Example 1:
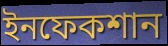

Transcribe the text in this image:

ইনফেকশান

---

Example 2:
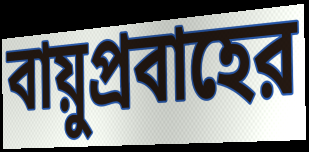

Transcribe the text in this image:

বায়ুপ্রবাহের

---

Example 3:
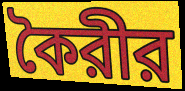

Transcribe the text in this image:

কৈরীর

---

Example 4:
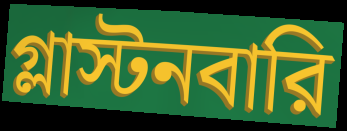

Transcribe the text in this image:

গ্লাস্টনবারি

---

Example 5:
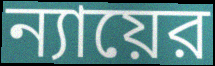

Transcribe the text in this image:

ন্যায়ের